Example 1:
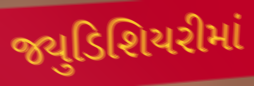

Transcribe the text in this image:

જ્યુડિશિયરીમાં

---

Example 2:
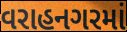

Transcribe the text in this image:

વરાહનગરમાં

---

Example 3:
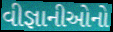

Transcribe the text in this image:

વીજ્ઞાનીઓનો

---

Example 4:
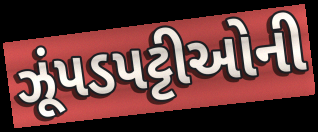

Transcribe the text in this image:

ઝૂંપડપટ્ટીઓની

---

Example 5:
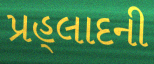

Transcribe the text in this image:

પ્રહ્‌લાદની